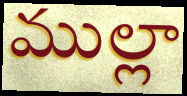
ముల్లా